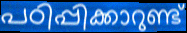
പഠിപ്പിക്കാറുണ്ട്